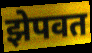
झेपवत